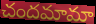
చందమామా